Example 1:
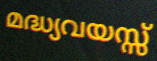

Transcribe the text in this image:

മദ്ധ്യവയസ്സ്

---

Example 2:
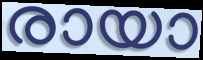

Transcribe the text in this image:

രായാ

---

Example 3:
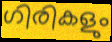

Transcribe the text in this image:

ഗിരികളും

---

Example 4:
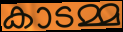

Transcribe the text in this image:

കാടമ്മ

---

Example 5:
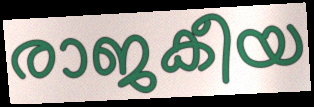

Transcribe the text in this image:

രാജകീയ